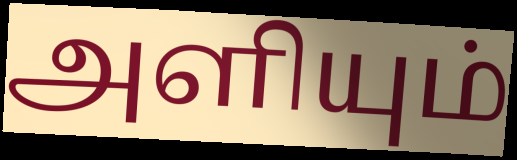
அளியும்